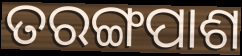
ତରଙ୍ଗପାଶ